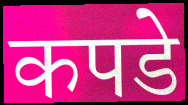
कपडे